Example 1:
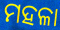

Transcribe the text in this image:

ମହଳା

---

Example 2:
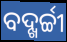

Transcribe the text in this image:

ବଦ୍ଖର୍ଚ୍ଚୀ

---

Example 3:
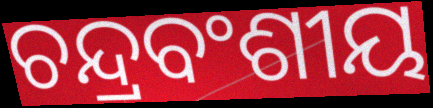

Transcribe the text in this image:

ଚନ୍ଦ୍ରବଂଶୀୟ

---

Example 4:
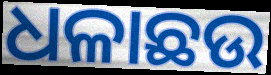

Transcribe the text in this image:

ଧଳାଛଉ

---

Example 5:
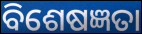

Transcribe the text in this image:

ବିଶେଷଜ୍ଞତା